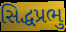
સિદ્ધપ્રભુ